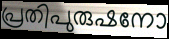
പ്രതിപുരുഷനോ